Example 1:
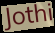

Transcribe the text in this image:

Jothi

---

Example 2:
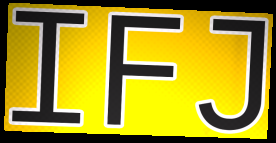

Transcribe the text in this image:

IFJ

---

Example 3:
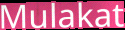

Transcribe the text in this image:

Mulakat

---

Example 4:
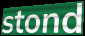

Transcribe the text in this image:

stond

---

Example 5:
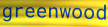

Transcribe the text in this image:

greenwood